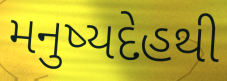
મનુષ્યદેહથી